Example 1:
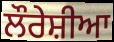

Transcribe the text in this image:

ਲੌਰੇਸ਼ੀਆ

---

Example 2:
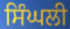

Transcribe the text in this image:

ਸਿੰਘਲੀ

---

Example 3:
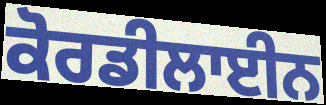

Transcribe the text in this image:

ਕੋਰਡੀਲਾਈਨ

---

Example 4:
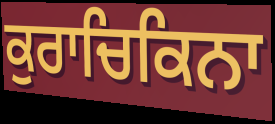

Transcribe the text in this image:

ਕੁਰਾਚਿਕਿਨਾ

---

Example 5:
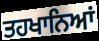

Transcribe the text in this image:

ਤਹਖਾਨਿਆਂ